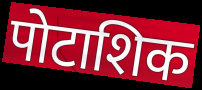
पोटाशिक